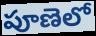
పూణెలో